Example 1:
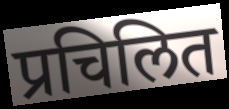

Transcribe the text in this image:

प्रचिलित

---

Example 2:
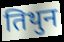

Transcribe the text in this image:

तिथुन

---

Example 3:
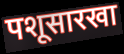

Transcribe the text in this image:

पशूसारखा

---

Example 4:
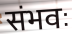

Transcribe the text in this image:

संभवः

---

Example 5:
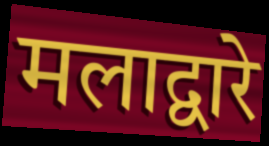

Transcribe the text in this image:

मलाद्वारे